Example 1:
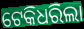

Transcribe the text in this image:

ଟେକିଧରିଲା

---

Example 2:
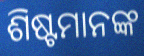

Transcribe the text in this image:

ଶିଷ୍ଟମାନଙ୍କ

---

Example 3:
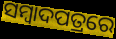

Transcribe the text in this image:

ସମ୍ୱାଦପତ୍ରରେ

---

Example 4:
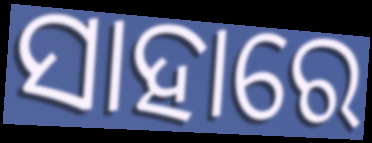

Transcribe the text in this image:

ସାହାରେ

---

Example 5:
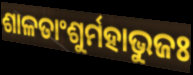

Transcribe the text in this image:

ଶାଳତାଂଶୁର୍ମହାଭୁଜଃ